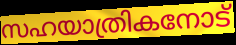
സഹയാത്രികനോട്